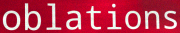
oblations